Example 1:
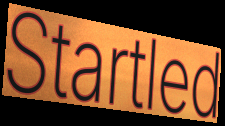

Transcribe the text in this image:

Startled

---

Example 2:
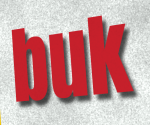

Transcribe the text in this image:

buk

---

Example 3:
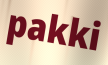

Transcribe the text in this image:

pakki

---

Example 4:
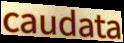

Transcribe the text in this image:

caudata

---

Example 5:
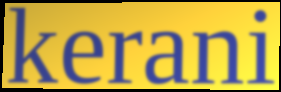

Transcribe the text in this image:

kerani